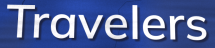
Travelers